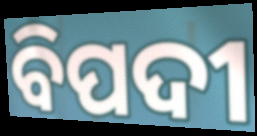
ବିପଦୀ